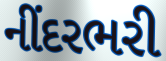
નીંદરભરી